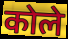
कोले